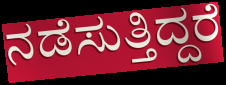
ನಡೆಸುತ್ತಿದ್ದರೆ